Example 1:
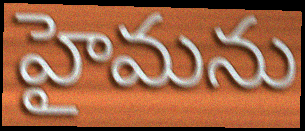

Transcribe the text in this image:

హైమను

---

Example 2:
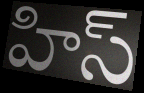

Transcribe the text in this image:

హిస్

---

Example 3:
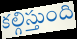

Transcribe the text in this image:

కల్గిస్తుంది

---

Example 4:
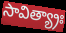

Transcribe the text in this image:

సావిత్య్రాః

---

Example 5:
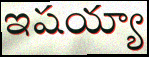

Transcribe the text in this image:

ఇషయ్యా